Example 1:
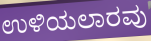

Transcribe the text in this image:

ಉಳಿಯಲಾರವು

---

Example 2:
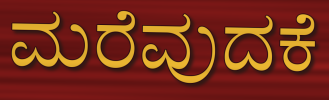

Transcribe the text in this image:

ಮರೆವುದಕೆ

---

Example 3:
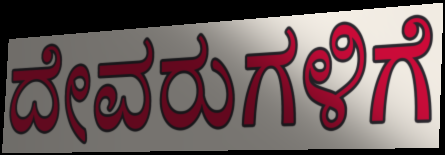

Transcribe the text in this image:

ದೇವರುಗಳಿಗೆ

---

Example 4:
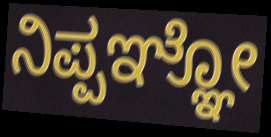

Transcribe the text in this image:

ನಿಪ್ಪಞ್ಞೋ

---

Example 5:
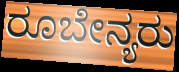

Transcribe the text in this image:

ರೂಬೇನ್ಯರು